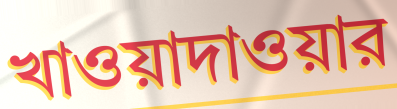
খাওয়াদাওয়ার